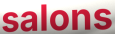
salons